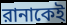
রানাকেই